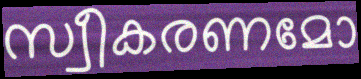
സ്വീകരണമോ